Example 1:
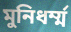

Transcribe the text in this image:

মুনিধর্ম্ম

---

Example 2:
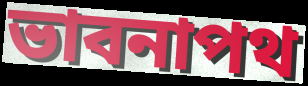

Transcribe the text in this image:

ভাবনাপথ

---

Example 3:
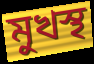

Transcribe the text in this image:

মুখস্থ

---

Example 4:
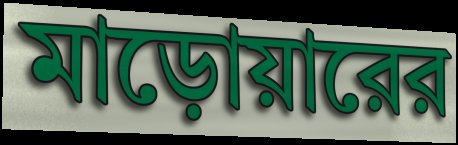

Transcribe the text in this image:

মাড়োয়ারের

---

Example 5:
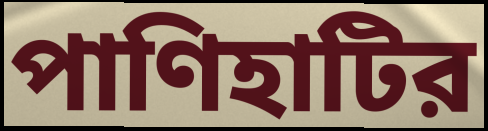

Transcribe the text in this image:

পাণিহাটির